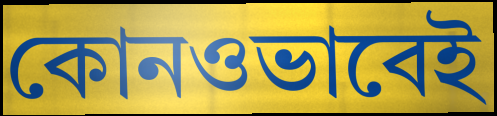
কোনওভাবেই